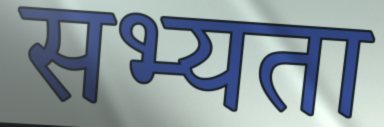
सभ्यता